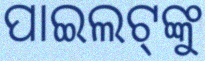
ପାଇଲଟ୍‌ଙ୍କୁ